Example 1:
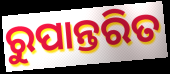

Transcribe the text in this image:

ରୁପାନ୍ତରିତ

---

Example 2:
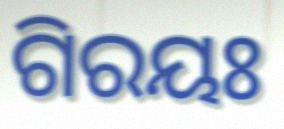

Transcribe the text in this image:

ଗିରୟଃ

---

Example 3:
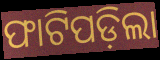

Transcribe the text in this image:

ଫାଟିପଡ଼ିଲା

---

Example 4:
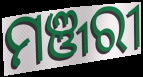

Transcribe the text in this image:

ମଞ୍ଜରୀ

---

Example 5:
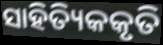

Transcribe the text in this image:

ସାହିତ୍ୟିକକୃତି